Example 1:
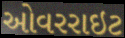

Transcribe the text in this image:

ઓવરરાઇટ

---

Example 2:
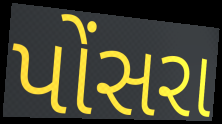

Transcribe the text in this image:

પોંસરા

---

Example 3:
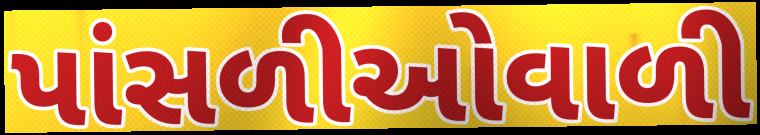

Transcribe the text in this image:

પાંસળીઓવાળી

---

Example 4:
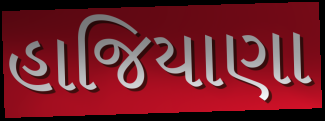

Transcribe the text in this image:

હાજિયાણા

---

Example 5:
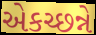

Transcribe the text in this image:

એકચ્છન્ને